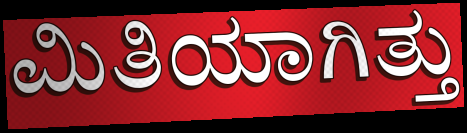
ಮಿತಿಯಾಗಿತ್ತು